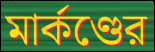
মার্কণ্ডের